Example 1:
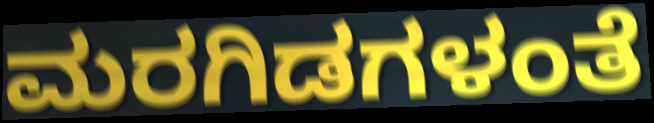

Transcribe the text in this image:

ಮರಗಿಡಗಳಂತೆ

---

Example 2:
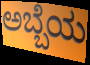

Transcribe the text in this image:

ಅಬ್ಬೆಯ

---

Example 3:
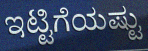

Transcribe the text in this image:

ಇಟ್ಟಿಗೆಯಷ್ಟು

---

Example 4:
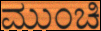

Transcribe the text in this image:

ಮುಂಚಿ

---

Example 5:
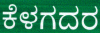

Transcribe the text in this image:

ಕೆಳಗದರ